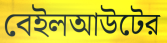
বেইলআউটের